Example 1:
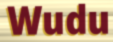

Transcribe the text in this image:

Wudu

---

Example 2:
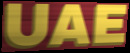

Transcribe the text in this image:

UAE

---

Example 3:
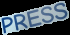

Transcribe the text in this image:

PRESS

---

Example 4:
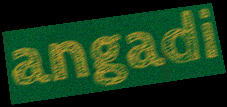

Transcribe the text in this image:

angadi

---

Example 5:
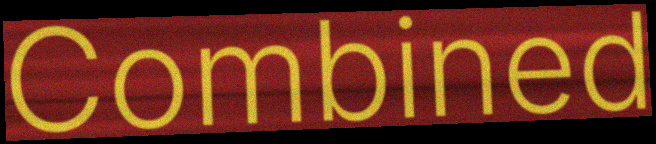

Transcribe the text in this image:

Combined